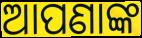
ଆପଣାଙ୍କ